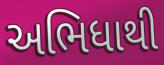
અભિધાથી